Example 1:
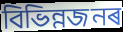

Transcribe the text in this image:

বিভিন্নজনৰ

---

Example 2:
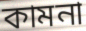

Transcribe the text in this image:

কামনা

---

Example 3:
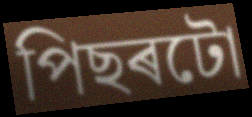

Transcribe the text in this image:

পিছৰটো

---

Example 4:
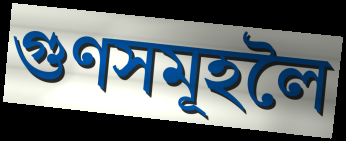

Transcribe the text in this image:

গুণসমূহলৈ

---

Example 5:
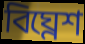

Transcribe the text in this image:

বিঘ্নেশ